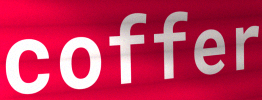
coffer